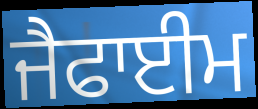
ਜੈਫਾਈਮ